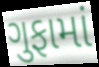
ગુફામાં